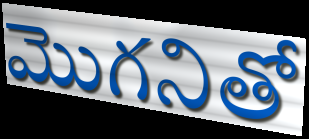
మొగనితో